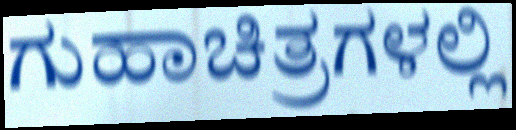
ಗುಹಾಚಿತ್ರಗಳಲ್ಲಿ